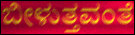
ಬೀಳುತ್ತವಂತೆ